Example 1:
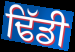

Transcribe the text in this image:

ਢਿੱਡੀ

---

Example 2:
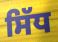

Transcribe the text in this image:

ਸਿੱਧ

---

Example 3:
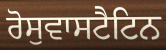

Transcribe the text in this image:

ਰੋਸੁਵਾਸਟੈਟਿਨ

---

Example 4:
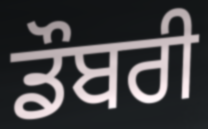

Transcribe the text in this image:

ਡੌਬਰੀ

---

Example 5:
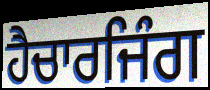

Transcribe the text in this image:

ਹੈਚਾਰਜਿੰਗ